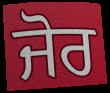
ਜੋਰ